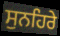
ਸੁਨਹਿਰੇ